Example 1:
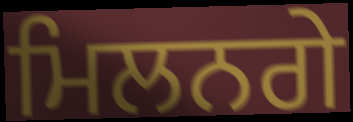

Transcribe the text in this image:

ਮਿਲਨਗੇ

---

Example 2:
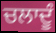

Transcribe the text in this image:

ਚਲਾਦੂੰ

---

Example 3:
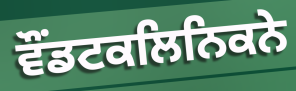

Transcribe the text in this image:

ਵੌਂਡਟਕਲਿਨਿਕਨੇ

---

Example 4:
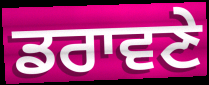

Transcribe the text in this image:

ਡਰਾਵਣੇ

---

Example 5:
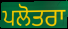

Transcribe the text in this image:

ਪਲੋਤਰਾ